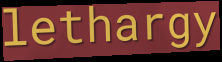
lethargy